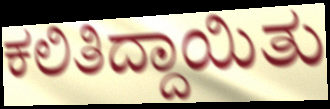
ಕಲಿತಿದ್ದಾಯಿತು